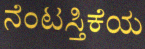
ನೆಂಟಸ್ತಿಕೆಯ